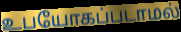
உபயோகப்படாமல்